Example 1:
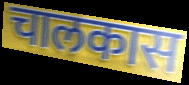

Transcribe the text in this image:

चालकास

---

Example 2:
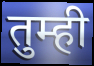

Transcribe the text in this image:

तुम्ही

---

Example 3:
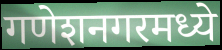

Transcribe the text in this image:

गणेशनगरमध्ये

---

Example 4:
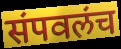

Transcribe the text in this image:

संपवलंच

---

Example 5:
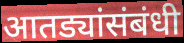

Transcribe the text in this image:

आतड्यांसंबंधी